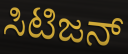
ಸಿಟಿಜನ್